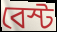
বেস্ট